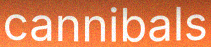
cannibals